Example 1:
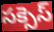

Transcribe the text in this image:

సక్సెస్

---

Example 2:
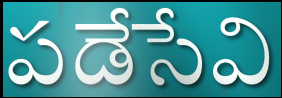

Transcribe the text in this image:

పడేసేవి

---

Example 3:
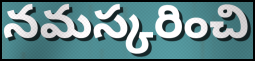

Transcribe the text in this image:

నమస్కరించి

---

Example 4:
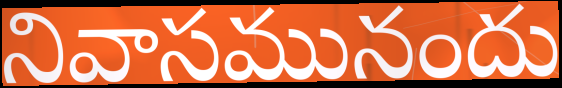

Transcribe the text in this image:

నివాసమునందు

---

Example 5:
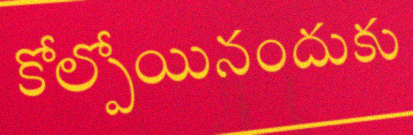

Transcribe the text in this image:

కోల్పోయినందుకు